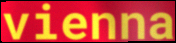
vienna